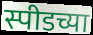
स्पीडच्या